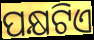
ପକ୍ଷଟିଏ